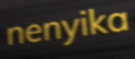
nenyika